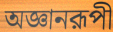
অজ্ঞানরূপী